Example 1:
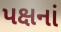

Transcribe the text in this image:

પક્ષનાં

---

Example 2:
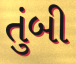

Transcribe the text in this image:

તુંબી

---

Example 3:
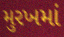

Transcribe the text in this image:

મુરખમાં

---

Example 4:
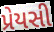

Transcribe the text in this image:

પ્રેયસી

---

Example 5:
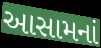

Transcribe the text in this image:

આસામનાં